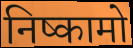
निष्कामो